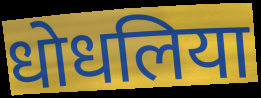
धोधलिया